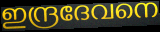
ഇന്ദ്രദേവനെ